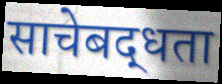
साचेबद्धता